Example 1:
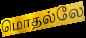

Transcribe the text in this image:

மொதல்லே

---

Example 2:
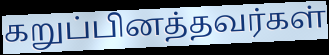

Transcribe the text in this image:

கறுப்பினத்தவர்கள்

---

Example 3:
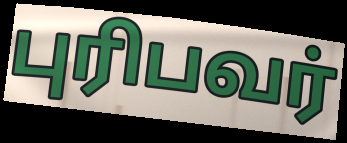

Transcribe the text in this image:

புரிபவர்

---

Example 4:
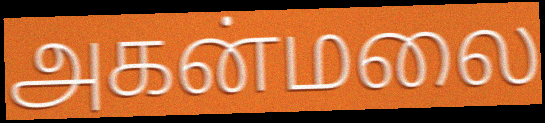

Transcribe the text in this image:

அகன்மலை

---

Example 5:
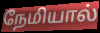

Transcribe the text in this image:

நேமியால்